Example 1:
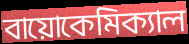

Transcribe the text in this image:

বায়োকেমিক্যাল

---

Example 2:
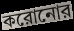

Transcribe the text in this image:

করোনোর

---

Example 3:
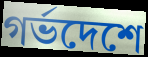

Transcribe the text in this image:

গর্ভদেশে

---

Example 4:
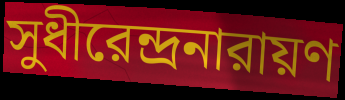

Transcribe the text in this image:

সুধীরেন্দ্রনারায়ণ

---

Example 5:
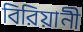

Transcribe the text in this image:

বিরিয়ানী